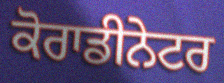
ਕੋਰਾਡੀਨੇਟਰ